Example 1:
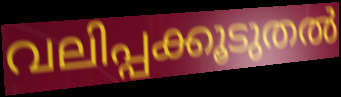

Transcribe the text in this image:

വലിപ്പക്കൂടുതൽ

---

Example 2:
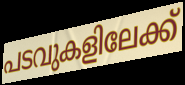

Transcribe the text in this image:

പടവുകളിലേക്ക്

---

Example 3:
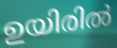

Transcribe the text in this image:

ഉയിരിൽ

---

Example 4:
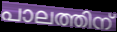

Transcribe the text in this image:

പാലത്തിന്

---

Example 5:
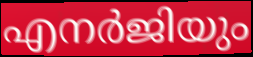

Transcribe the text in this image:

എനർജിയും